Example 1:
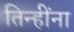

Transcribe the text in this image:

तिन्हींना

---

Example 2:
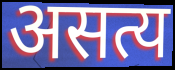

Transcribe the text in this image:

असत्य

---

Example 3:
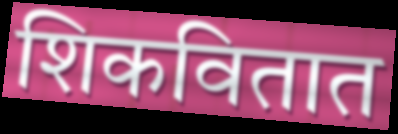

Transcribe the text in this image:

शिकवितात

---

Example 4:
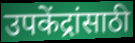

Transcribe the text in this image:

उपकेंद्रांसाठी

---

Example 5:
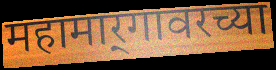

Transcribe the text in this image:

महामार्गावरच्या